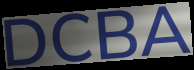
DCBA